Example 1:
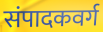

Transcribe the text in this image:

संपादकवर्ग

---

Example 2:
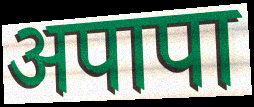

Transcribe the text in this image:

अपापा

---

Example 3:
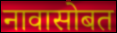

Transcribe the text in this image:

नावासोबत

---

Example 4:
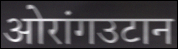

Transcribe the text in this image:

ओरांगउटान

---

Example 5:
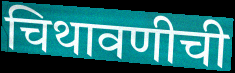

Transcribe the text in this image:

चिथावणीची